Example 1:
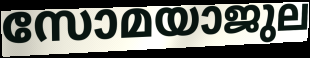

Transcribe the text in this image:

സോമയാജുല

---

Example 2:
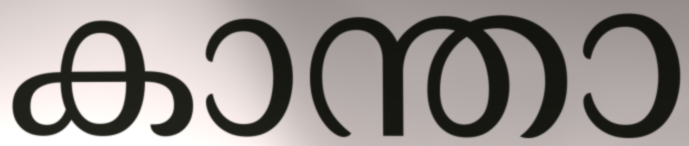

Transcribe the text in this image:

കാന്താ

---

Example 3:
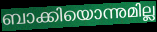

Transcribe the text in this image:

ബാക്കിയൊന്നുമില്ല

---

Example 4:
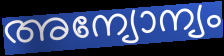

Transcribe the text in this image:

അന്യോന്യം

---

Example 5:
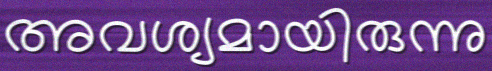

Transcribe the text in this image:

അവശ്യമായിരുന്നു